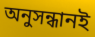
অনুসন্ধানই